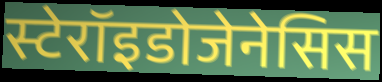
स्टेरॉइडोजेनेसिस